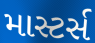
માસ્ટર્સ